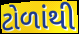
ટોળાંથી